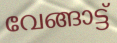
വേങ്ങാട്ട്